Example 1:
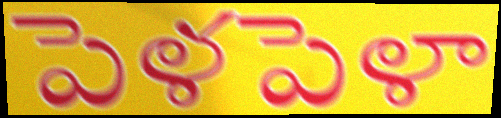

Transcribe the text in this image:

పెళపెళా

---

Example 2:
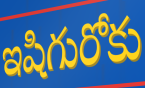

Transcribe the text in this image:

ఇషిగురోకు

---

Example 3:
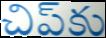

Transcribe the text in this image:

చిప్‌కు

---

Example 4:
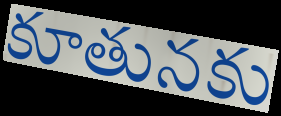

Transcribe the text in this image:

కూతునకు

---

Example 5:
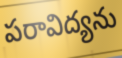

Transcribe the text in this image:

పరావిద్యను